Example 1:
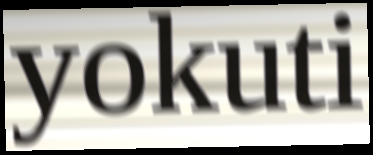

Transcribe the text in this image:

yokuti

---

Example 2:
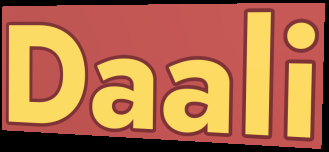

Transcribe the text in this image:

Daali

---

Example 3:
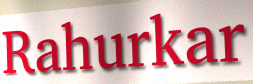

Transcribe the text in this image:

Rahurkar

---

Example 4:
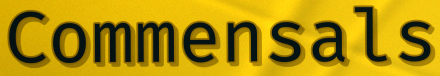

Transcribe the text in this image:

Commensals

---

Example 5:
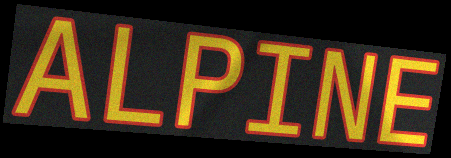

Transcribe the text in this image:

ALPINE